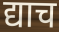
द्याच